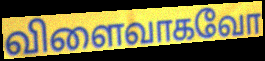
விளைவாகவோ